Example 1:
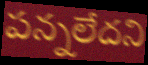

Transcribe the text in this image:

పన్నలేదని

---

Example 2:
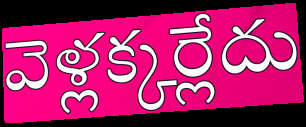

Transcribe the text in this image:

వెళ్లక్కర్లేదు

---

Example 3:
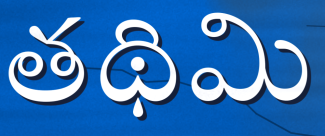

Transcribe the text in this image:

తథిమి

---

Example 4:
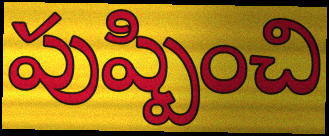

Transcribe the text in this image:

పుష్పించి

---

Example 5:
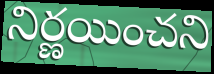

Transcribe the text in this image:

నిర్ణయించని